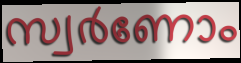
സ്വർണോം